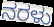
ನರಳು